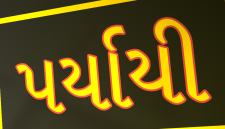
પર્યાયી